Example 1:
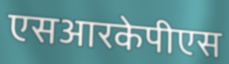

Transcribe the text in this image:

एसआरकेपीएस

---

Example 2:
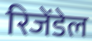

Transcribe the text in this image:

रिजेंडेल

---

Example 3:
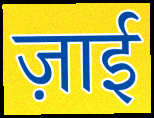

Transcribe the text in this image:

ज़ाई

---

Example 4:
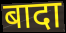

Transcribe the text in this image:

बादा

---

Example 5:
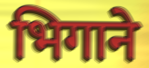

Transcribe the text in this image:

भिगाने